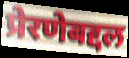
प्रेरणेबद्दल